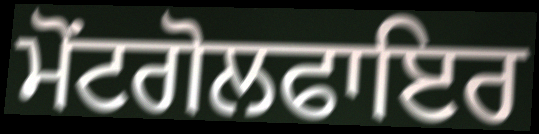
ਮੋਂਟਗੋਲਫਾਇਰ